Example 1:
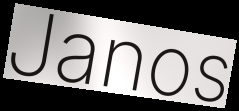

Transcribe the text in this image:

Janos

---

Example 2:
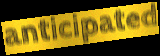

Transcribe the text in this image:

anticipated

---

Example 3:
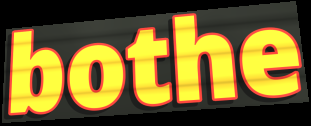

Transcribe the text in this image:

bothe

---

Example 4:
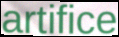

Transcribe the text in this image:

artifice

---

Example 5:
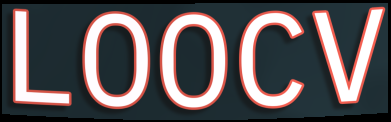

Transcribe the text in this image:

LOOCV